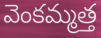
వెంకమ్మత్త